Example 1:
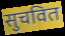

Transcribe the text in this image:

सुचवित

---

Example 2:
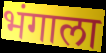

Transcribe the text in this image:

भंगाला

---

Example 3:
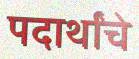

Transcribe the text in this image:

पदार्थांचे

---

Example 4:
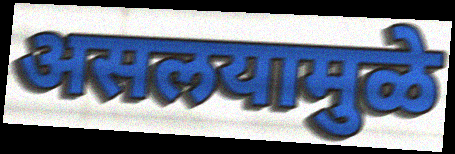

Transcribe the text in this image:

असलयामुळे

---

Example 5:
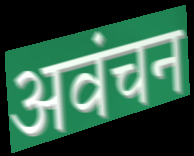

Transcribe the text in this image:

अवंचन